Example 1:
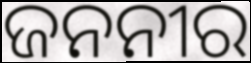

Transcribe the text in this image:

ଜନନୀର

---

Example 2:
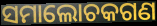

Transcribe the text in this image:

ସମାଲୋଚକଗଣ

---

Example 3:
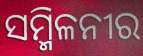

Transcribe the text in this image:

ସମ୍ମିଳନୀର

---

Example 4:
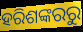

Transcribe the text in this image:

ହରିଶଙ୍କରରୁ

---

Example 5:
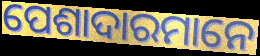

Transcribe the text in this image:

ପେଶାଦାରମାନେ